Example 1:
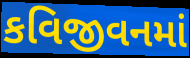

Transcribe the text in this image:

કવિજીવનમાં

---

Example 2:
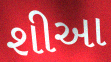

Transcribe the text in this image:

શીઆ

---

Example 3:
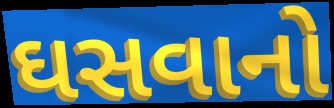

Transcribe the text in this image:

ઘસવાનો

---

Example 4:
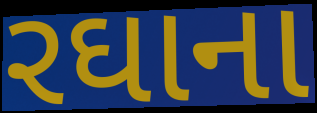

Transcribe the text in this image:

રઘાના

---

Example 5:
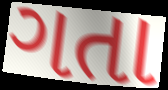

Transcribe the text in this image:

ગતા